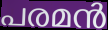
പരമൻ